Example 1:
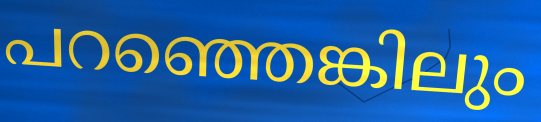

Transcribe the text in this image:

പറഞ്ഞെങ്കിലും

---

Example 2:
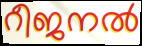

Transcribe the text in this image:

റീജനൽ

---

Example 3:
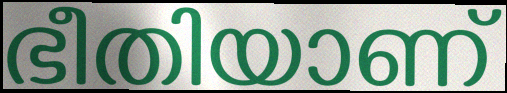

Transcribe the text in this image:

ഭീതിയാണ്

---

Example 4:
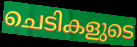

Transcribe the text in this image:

ചെടികളുടെ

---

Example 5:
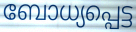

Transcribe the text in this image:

ബോധ്യപ്പെട്ട